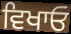
ਵਿਖਾਓ